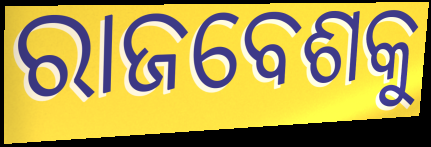
ରାଜବେଶକୁ